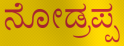
ನೋಡ್ರಪ್ಪ